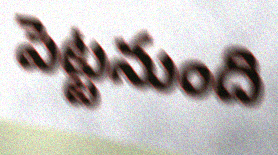
పెట్టనుంది